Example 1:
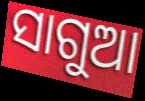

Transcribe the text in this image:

ସାଗୁଆ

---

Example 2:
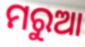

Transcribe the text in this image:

ମରୁଆ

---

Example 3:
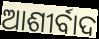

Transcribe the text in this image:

ଆଶୀର୍ବାଦ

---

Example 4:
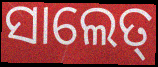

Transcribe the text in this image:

ସାଲେତ୍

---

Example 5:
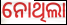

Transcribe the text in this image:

ନୋଥିଲା